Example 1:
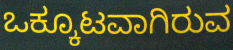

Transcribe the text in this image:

ಒಕ್ಕೂಟವಾಗಿರುವ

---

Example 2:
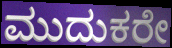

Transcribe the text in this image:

ಮುದುಕರೇ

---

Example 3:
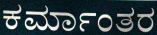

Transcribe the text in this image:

ಕರ್ಮಾಂತರ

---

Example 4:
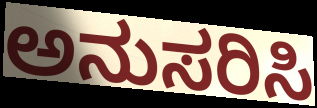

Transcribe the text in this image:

ಅನುಸರಿಸಿ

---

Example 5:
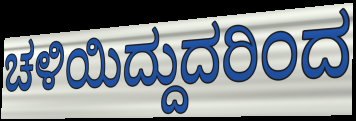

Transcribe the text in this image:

ಚಳಿಯಿದ್ದುದರಿಂದ